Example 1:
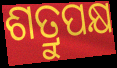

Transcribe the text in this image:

ଶତ୍ରୁପକ୍ଷ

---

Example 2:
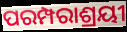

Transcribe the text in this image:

ପରମ୍ପରାଶ୍ରୟୀ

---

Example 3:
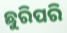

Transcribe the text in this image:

ଛୁରିପରି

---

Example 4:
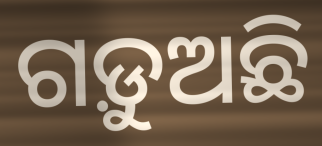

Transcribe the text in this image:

ଗଡ଼ୁଅଛି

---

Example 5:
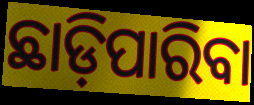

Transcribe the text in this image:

ଛାଡ଼ିପାରିବା